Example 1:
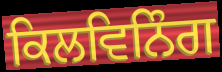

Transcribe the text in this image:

ਕਿਲਵਿਨਿੰਗ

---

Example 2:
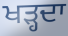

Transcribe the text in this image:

ਖੜ੍ਹਦਾ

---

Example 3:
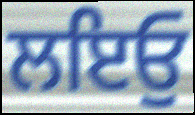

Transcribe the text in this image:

ਲਇਓੁ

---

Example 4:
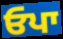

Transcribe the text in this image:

ਓਪਾ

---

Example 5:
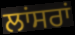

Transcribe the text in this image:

ਲਾਂਸਰਾਂ